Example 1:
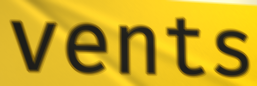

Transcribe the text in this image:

vents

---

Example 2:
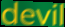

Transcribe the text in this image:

devil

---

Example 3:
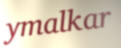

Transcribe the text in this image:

ymalkar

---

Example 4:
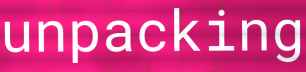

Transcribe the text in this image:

unpacking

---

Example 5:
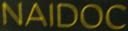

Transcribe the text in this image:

NAIDOC